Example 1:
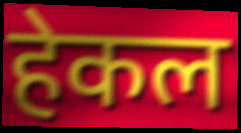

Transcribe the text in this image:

हेकल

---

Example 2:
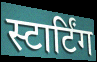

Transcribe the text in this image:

स्टार्टिंग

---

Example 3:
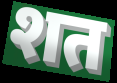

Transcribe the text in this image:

शत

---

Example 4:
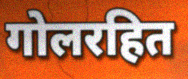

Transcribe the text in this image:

गोलरहित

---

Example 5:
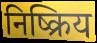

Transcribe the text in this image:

निष्क्रिय